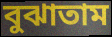
বুঝাতাম